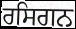
ਰਸਿਗਨ